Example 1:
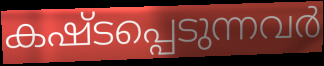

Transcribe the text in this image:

കഷ്ടപ്പെടുന്നവർ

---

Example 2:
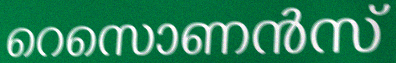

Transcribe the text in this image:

റെസൊണൻസ്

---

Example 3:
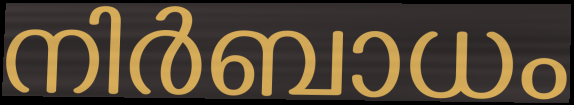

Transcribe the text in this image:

നിർബാധം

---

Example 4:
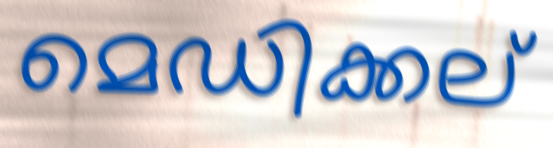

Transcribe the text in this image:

മെഡിക്കല്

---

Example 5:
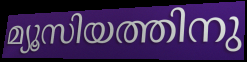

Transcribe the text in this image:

മ്യൂസിയത്തിനു